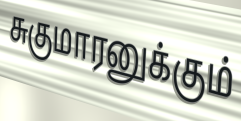
சுகுமாரனுக்கும்